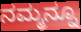
ನಮ್ಮನ್ನೂ